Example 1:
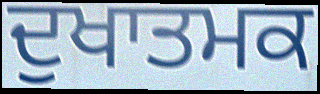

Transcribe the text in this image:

ਦੁਖਾਤਮਕ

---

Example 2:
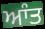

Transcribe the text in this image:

ਆੰਤ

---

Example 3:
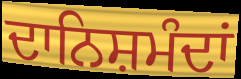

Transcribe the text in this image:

ਦਾਨਿਸ਼ਮੰਦਾਂ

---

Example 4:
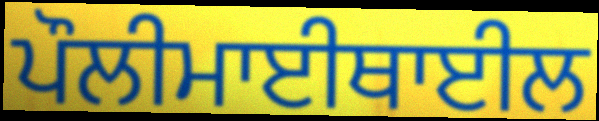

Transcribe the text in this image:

ਪੌਲੀਮਾਈਥਾਈਲ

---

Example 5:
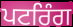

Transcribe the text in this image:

ਪਟਰਿੰਗ